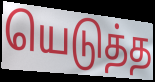
யெடுத்த